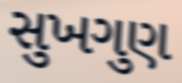
સુખગુણ